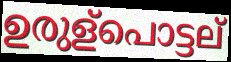
ഉരുള്പൊട്ടല്